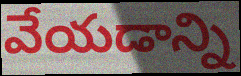
వేయడాన్ని